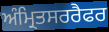
ਅੰਮ੍ਰਿਤਸਰਰੈਫਰ